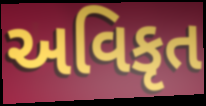
અવિકૃત